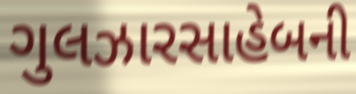
ગુલઝારસાહેબની